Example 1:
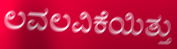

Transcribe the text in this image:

ಲವಲವಿಕೆಯಿತ್ತು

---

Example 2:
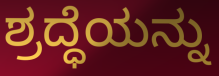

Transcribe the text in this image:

ಶ್ರದ್ಧೆಯನ್ನು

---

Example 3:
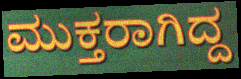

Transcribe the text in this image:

ಮುಕ್ತರಾಗಿದ್ದ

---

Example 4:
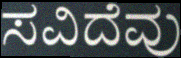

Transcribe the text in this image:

ಸವಿದೆವು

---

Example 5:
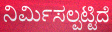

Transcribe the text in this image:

ನಿರ್ಮಿಸಲ್ಪಟ್ಟಿದೆ